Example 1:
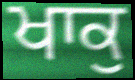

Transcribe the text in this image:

ਖਾਕੁ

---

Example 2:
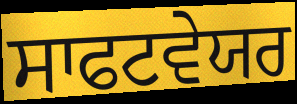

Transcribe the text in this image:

ਸਾਫਟਵੇਯਰ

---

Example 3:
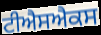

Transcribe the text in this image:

ਟੀਐਸਐਕਸ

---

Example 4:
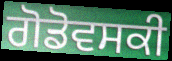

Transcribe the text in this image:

ਗੋਡੋਵਸਕੀ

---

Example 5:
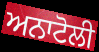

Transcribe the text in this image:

ਅਨਾਟੋਲੀ